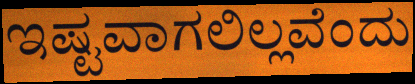
ಇಷ್ಟವಾಗಲಿಲ್ಲವೆಂದು